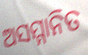
ଅସମ୍ମାନିତ